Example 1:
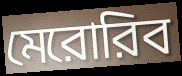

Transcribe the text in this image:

মেরোরিব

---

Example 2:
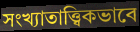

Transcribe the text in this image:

সংখ্যাতাত্ত্বিকভাবে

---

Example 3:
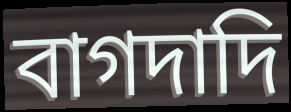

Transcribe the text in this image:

বাগদাদি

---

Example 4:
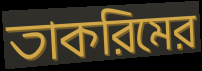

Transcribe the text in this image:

তাকরিমের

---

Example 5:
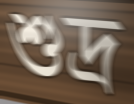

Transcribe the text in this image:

শুদ্র